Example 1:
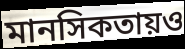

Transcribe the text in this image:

মানসিকতায়ও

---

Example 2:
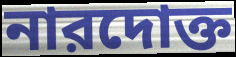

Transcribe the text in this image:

নারদোক্ত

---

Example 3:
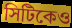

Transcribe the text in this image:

সিটিকেও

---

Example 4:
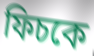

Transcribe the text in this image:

ফিচকে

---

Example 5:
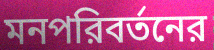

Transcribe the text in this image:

মনপরিবর্তনের